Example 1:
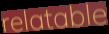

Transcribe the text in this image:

relatable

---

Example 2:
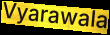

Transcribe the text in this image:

Vyarawala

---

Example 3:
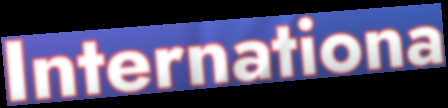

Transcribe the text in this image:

Internationa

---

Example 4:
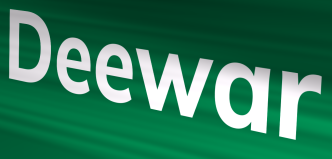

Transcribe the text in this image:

Deewar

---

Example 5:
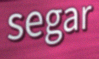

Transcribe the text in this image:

segar